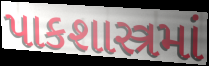
પાકશાસ્ત્રમાં